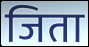
जिता